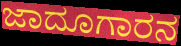
ಜಾದೂಗಾರನ